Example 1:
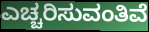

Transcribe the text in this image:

ಎಚ್ಚರಿಸುವಂತಿವೆ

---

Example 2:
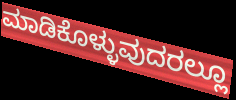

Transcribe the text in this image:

ಮಾಡಿಕೊಳ್ಳುವುದರಲ್ಲೂ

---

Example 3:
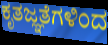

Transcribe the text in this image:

ಕೃತಜ್ಞತೆಗಳಿಂದ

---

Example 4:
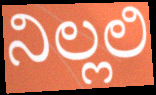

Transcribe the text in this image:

ನಿಲ್ಲಲಿ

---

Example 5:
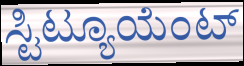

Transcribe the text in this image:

ಸ್ಟಿಟ್ಯೂಯೆಂಟ್